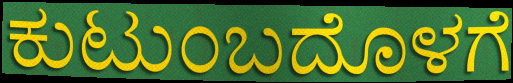
ಕುಟುಂಬದೊಳಗೆ